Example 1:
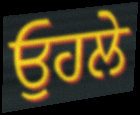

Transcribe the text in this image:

ਓੁਹਲੇ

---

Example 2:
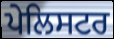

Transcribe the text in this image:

ਪੇਲਿਸਟਰ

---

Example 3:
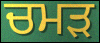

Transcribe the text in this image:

ਚਮੜ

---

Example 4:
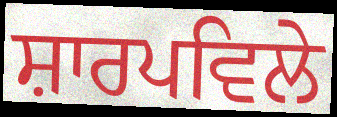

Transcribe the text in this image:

ਸ਼ਾਰਪਵਿਲੇ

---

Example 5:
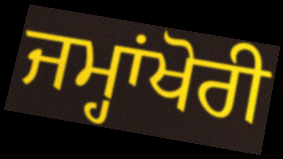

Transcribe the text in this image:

ਜਮ੍ਹਾਂਖੋਰੀ